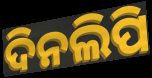
ଦିନଲିପି